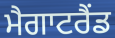
ਮੈਗਾਟਰੈਂਡ